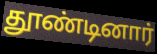
தூண்டினார்